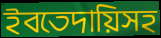
ইবতেদায়িসহ